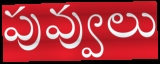
పువ్వులు